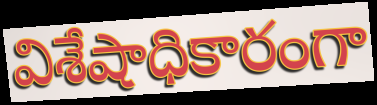
విశేషాధికారంగా